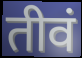
तीवं